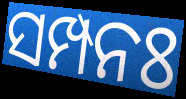
ସମ୍ପନଃ